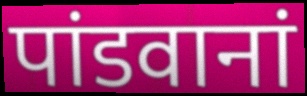
पांडवानां